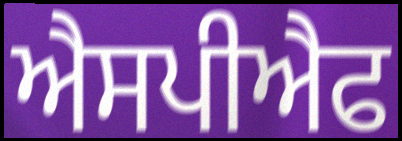
ਐਸਪੀਐਫ